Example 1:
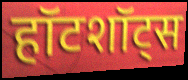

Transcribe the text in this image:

हॉटशॉट्स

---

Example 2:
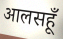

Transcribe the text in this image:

आलसहूँ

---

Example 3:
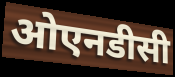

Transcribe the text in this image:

ओएनडीसी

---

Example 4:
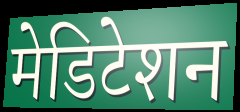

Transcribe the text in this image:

मेडिटेशन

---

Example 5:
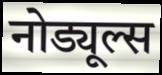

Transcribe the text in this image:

नोड्यूल्स